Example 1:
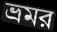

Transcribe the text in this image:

ভ্রমর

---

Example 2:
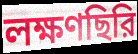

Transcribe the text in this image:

লক্ষণছিরি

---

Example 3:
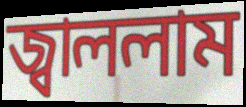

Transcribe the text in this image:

জ্বাললাম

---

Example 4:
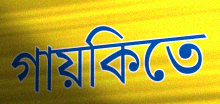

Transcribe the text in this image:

গায়কিতে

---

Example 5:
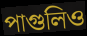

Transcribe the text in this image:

পাগুলিও